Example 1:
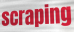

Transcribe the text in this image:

scraping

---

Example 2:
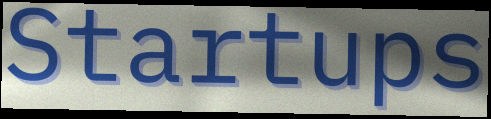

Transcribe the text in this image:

Startups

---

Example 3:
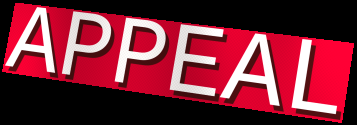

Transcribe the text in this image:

APPEAL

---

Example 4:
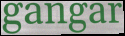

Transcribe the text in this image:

gangar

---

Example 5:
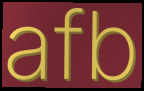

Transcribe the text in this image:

afb